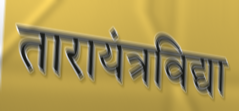
तारायंत्रविद्या